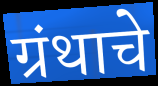
ग्रंथाचे